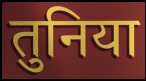
तुनिया